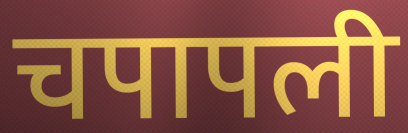
चपापली